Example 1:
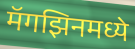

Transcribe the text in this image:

मॅगझिनमध्ये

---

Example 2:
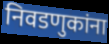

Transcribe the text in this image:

निवडणुकांना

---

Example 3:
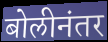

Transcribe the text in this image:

बोलीनंतर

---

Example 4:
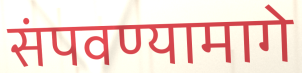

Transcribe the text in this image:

संपवण्यामागे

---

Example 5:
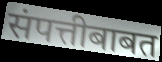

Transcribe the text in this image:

संपत्तीबाबत